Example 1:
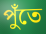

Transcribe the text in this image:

পুঁতে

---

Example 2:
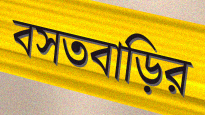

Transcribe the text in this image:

বসতবাড়ির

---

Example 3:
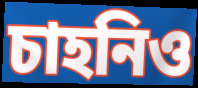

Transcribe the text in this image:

চাহনিও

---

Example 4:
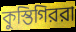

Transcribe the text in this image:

কুস্তিগিররা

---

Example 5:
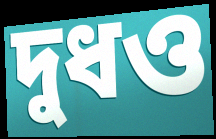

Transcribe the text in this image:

দুধও